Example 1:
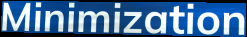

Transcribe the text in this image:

Minimization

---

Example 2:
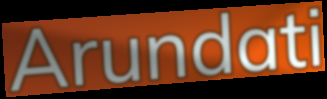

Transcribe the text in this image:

Arundati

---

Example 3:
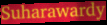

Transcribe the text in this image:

Suharawardy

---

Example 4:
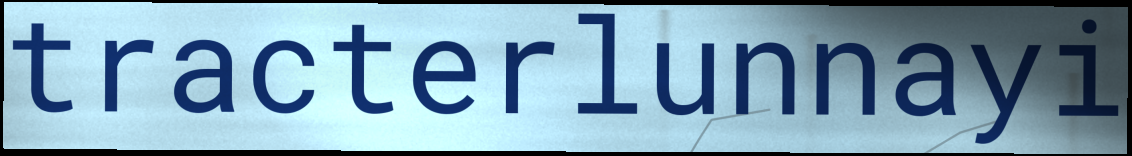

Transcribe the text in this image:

tracterlunnayi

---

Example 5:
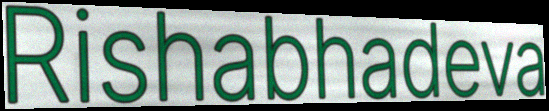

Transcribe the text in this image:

Rishabhadeva